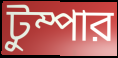
টুম্পার